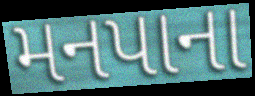
મનપાના